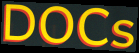
DOCs